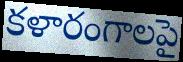
కళారంగాలపై